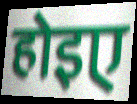
होइए